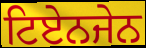
ਟਿਏਨਜੇਨ